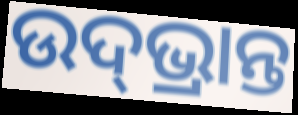
ଉଦ୍‌ଭ୍ରାନ୍ତ